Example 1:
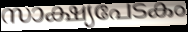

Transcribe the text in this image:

സാക്ഷ്യപേടകം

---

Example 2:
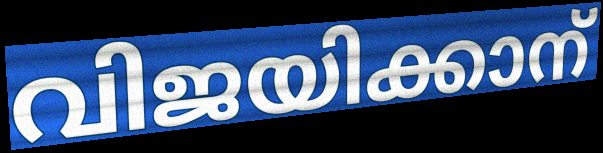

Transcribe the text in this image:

വിജയിക്കാന്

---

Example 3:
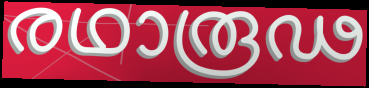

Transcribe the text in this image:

രഥാരൂഢ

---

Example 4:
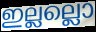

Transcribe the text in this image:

ഇല്ലല്ലൊ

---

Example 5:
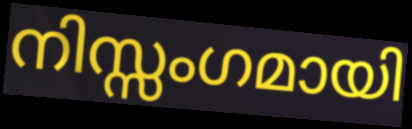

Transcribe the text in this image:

നിസ്സംഗമായി